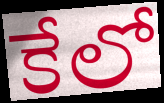
కేలో